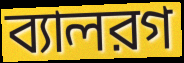
ব্যালরগ